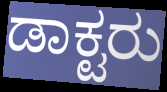
ಡಾಕ್ಟರು